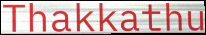
Thakkathu